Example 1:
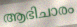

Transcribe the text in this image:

ആഭിചാരം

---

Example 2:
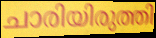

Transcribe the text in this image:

ചാരിയിരുത്തി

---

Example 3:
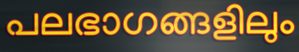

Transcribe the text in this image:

പലഭാഗങ്ങളിലും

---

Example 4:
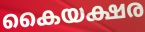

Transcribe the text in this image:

കൈയക്ഷര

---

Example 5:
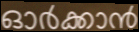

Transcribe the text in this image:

ഓർക്കാൻ